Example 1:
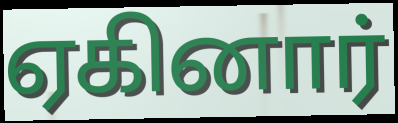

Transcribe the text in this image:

ஏகினார்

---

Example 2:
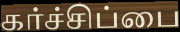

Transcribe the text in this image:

கர்ச்சிப்பை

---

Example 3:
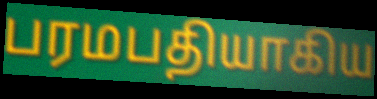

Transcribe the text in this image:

பரமபதியாகிய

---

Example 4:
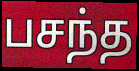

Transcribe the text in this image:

பசந்த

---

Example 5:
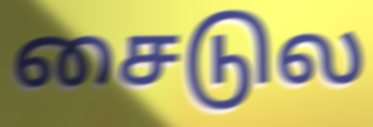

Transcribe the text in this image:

சைடுல